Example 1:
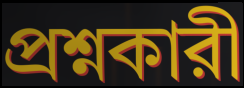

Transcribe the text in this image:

প্রশ্নকারী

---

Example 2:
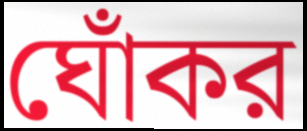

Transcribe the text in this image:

ঘোঁকর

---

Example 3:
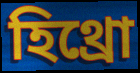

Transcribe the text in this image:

হিথ্রো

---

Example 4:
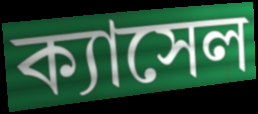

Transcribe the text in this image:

ক্যাসেল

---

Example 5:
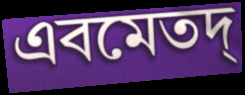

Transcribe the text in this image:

এবমেতদ্